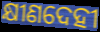
କ୍ଷୀଣଦେହୀ